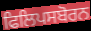
ਫਿਲਿਪਸਬੋਰਨ